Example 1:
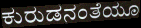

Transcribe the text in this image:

ಕುರುಡನಂತೆಯೂ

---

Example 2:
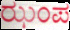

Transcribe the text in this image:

ಝಂಪ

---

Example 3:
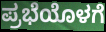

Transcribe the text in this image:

ಪ್ರಭೆಯೊಳಗೆ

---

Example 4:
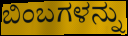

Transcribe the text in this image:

ಬಿಂಬಗಳನ್ನು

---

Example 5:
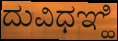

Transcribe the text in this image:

ದುವಿಧಞ್ಹಿ